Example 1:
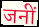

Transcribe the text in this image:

जनीं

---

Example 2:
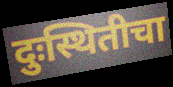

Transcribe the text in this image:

दुःस्थितीचा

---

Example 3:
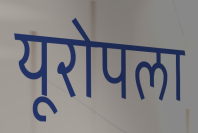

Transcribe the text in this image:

यूरोपला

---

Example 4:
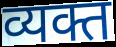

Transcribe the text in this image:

व्यक्त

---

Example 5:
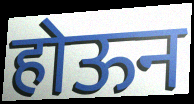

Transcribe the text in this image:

होऊन